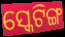
ସ୍କେଟିଙ୍ଗ